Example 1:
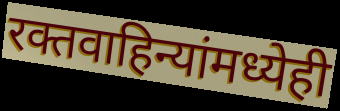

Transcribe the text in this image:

रक्तवाहिन्यांमध्येही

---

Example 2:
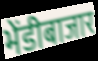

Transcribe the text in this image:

भेंडीबाजार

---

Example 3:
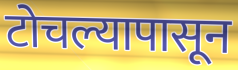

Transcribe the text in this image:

टोचल्यापासून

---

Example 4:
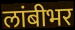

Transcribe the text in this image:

लांबीभर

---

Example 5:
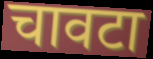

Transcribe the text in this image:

चावटा